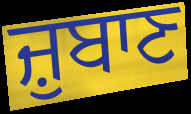
ਜ਼ੁਬਾਣ